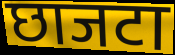
छाजटा